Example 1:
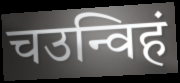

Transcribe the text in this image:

चउन्विहं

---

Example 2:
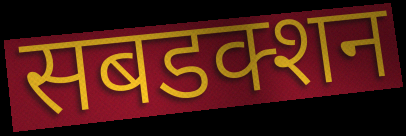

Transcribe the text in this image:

सबडक्शन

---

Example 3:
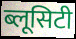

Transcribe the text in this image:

ब्लूसिटी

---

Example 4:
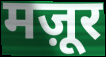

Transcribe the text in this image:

मज़ूर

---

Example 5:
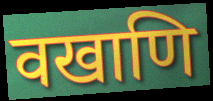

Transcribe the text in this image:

वखाणि